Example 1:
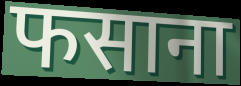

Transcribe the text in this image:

फसाना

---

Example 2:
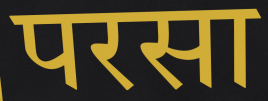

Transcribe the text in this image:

परसा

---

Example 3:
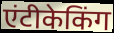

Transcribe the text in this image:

एंटीकेकिंग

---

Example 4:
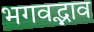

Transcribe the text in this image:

भगवद्भाव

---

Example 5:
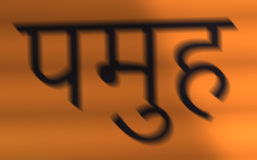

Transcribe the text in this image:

पमुह